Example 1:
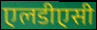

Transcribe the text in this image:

एलडीएसी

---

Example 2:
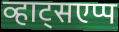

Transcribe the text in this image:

व्हाट्सएप्प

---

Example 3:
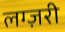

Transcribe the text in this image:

लग्ज़री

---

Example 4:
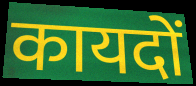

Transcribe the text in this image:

कायदों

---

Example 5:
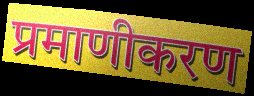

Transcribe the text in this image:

प्रमाणीकरण